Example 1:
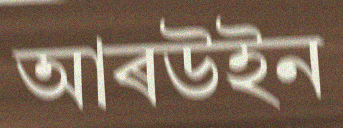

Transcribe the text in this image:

আৰউইন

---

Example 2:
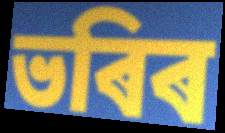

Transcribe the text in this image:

ভৰিৰ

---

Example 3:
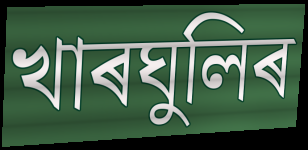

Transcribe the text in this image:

খাৰঘুলিৰ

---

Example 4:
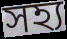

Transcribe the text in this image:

সহ্য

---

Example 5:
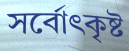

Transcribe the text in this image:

সৰ্বোৎকৃষ্ট